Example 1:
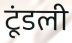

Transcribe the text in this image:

टूंडली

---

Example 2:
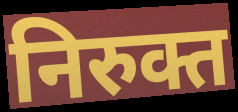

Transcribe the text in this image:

निरुक्त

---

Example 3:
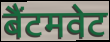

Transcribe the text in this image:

बैंटमवेट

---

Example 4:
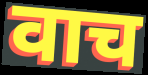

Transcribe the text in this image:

वाच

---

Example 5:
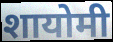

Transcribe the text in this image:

शायोमी